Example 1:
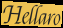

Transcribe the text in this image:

Hellaro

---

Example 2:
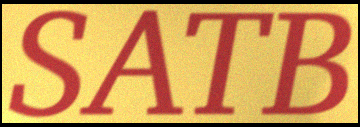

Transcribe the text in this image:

SATB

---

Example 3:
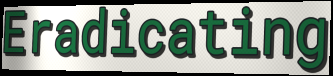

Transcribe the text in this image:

Eradicating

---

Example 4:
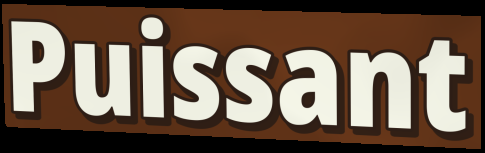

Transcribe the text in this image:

Puissant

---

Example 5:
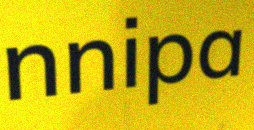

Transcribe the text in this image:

nnipa